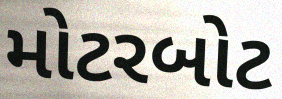
મોટરબોટ